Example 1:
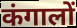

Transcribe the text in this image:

कंगालों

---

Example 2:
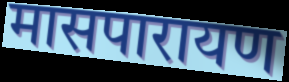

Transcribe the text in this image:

मासपारायण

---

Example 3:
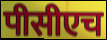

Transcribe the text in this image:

पीसीएच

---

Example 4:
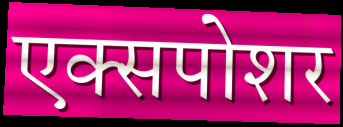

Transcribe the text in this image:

एक्सपोशर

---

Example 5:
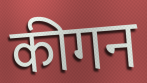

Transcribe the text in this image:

कीगन